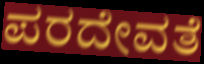
ಪರದೇವತೆ